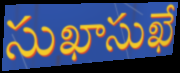
సుఖాసుఖే